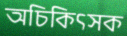
অচিকিৎসক